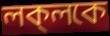
লক্‌লকে